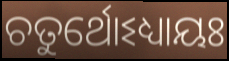
ଚତୁର୍ଥୋଽଧ୍ୟାୟଃ